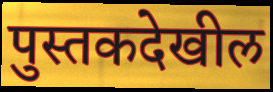
पुस्तकदेखील